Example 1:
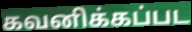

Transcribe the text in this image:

கவனிக்கப்பட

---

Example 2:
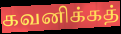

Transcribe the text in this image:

கவனிக்கத்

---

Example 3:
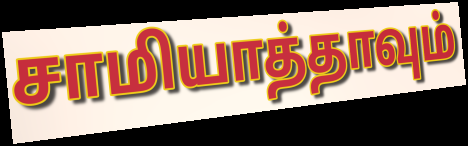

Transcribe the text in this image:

சாமியாத்தாவும்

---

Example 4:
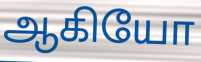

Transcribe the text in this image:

ஆகியோ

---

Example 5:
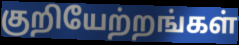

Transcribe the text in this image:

குறியேற்றங்கள்